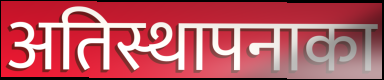
अतिस्थापनाका